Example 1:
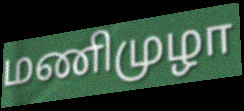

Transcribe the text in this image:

மணிமுழா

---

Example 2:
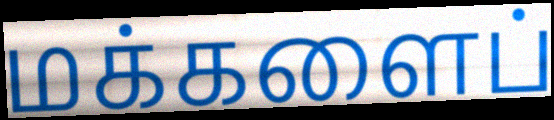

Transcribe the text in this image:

மக்களைப்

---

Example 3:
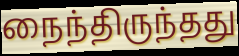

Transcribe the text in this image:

நைந்திருந்தது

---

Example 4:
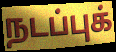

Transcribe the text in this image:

நடப்புக்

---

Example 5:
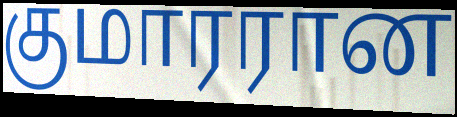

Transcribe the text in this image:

குமாரரான